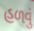
હળવું